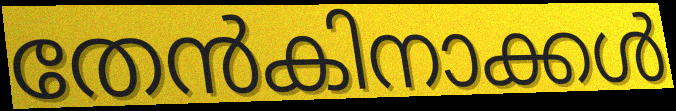
തേൻകിനാക്കൾ